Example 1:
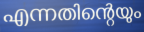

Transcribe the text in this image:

എന്നതിന്റെയും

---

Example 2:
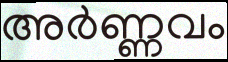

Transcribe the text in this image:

അർണ്ണവം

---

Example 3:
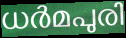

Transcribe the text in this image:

ധർമപുരി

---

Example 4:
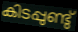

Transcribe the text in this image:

കിടപ്പുണ്ടു്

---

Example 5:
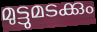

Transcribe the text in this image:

മുട്ടുമടക്കും